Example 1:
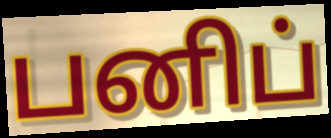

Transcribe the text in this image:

பனிப்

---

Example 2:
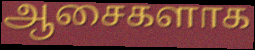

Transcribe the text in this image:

ஆசைகளாக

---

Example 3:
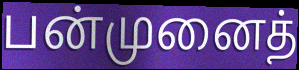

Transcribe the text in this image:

பன்முனைத்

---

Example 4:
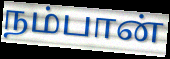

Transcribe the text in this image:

நம்பான்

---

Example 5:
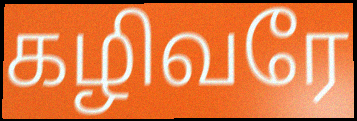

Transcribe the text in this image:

கழிவரே